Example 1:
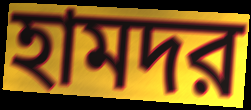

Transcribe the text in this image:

হামদর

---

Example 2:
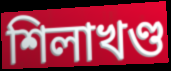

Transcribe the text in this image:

শিলাখণ্ড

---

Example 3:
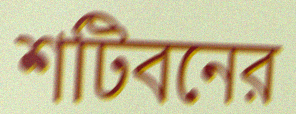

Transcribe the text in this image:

শটিবনের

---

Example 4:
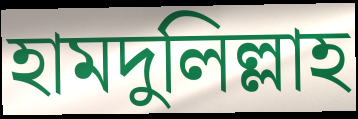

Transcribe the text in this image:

হামদুলিল্লাহ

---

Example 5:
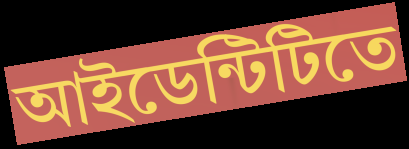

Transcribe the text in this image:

আইডেন্টিটিতে